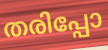
തരിപ്പോ